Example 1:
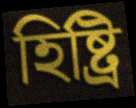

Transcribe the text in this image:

হিষ্ট্রি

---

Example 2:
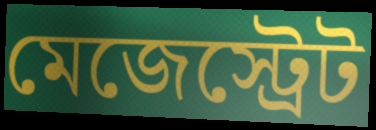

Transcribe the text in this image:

মেজেস্ট্রেট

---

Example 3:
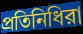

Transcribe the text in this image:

প্রতিনিধিরা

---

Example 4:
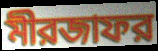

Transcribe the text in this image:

মীরজাফর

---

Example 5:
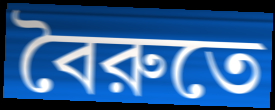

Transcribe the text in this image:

বৈরুতে